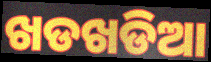
ଖଡଖଡିଆ